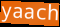
yaach